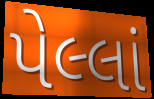
પેલ્લાં